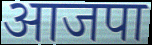
आजपा